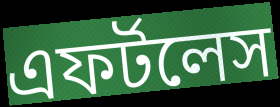
এফর্টলেস